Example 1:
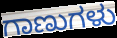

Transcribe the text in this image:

ಗಾಣುಗಳು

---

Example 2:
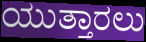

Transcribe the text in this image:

ಯುತ್ತಾರಲು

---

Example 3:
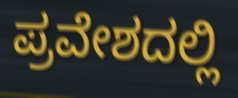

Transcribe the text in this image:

ಪ್ರವೇಶದಲ್ಲಿ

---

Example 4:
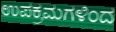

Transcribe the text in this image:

ಉಪಕ್ರಮಗಳಿಂದ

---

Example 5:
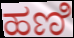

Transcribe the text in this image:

ಹಣಿ